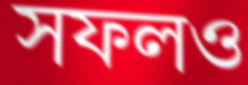
সফলও